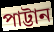
পাট্টান